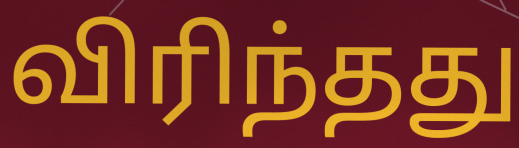
விரிந்தது